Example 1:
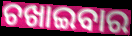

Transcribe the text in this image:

ଚଖାଇବାର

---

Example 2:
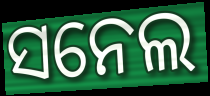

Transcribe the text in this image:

ସନେଲ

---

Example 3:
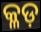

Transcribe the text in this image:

କ୍ଳଡ଼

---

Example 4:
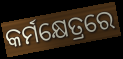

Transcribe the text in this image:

କର୍ମକ୍ଷେତ୍ରରେ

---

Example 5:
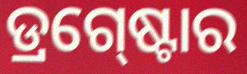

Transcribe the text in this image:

ଡ୍ରଗ୍‍ଷ୍ଟୋର